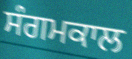
ਸੰਗਮਕਾਲ